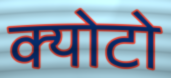
क्योटो